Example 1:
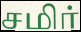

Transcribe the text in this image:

சமிர்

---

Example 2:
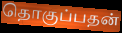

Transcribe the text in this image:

தொகுப்பதன்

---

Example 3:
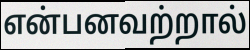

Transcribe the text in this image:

என்பனவற்றால்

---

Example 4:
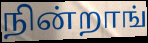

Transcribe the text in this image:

நின்றாங்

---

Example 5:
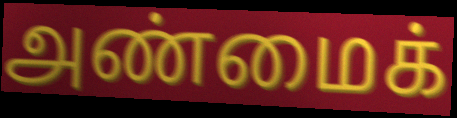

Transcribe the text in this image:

அண்மைக்